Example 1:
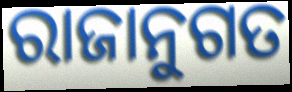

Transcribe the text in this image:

ରାଜାନୁଗତ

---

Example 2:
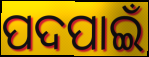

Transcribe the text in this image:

ପଦପାଇଁ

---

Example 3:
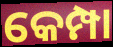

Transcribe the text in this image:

କେମ୍ପା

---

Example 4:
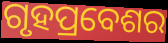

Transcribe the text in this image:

ଗୃହପ୍ରବେଶର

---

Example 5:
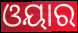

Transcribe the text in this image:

ଓୟାର